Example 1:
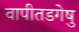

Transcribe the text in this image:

वापीतडगेषु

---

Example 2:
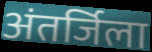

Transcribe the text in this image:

अंतर्जिला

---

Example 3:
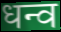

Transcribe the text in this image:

धन्व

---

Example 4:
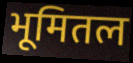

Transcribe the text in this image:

भूमितल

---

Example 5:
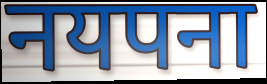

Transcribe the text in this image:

नयपना